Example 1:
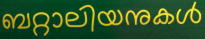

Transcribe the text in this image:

ബറ്റാലിയനുകൾ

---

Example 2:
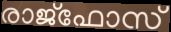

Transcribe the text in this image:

രാജ്ഫോസ്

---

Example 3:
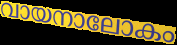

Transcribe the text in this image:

വായനാലോകം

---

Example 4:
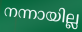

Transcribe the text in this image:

നന്നായില്ല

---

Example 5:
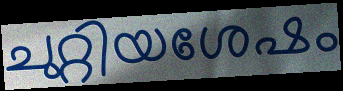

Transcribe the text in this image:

ചുറ്റിയശേഷം